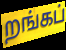
றங்கப்